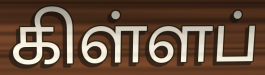
கிள்ளப்